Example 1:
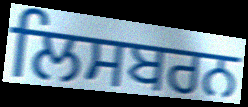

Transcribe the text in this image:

ਲਿਸਬਰਨ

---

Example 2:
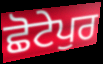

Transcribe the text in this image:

ਛੋਟੇਪੁਰ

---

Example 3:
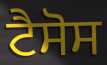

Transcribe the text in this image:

ਟੈਸੋਸ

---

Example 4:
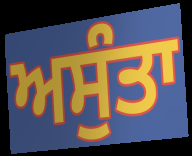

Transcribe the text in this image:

ਅਸੁੰਤਾ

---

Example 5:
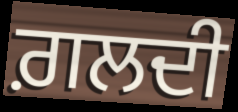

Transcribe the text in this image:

ਗ਼ਲਦੀ